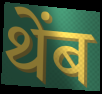
थेंब